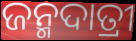
ଜନ୍ମଦାତ୍ରୀ